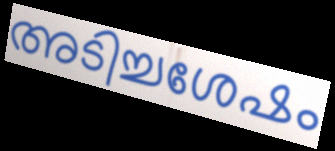
അടിച്ചശേഷം